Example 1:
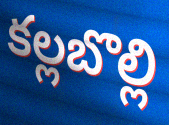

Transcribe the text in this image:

కల్లబొల్లి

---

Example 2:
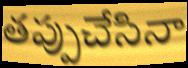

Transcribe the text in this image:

తప్పుచేసినా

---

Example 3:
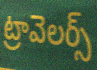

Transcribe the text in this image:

ట్రావెలర్స్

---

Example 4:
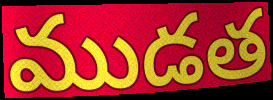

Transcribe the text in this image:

ముడత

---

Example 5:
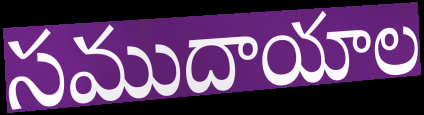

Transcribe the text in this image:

సముదాయాల